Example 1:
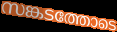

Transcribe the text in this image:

സങ്കടത്തോടെ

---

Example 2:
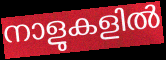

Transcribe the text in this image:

നാളുകളിൽ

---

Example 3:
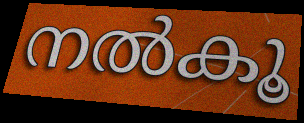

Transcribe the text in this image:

നൽകൂ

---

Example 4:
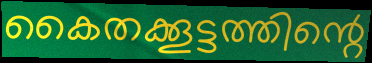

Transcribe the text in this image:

കൈതക്കൂട്ടത്തിന്റെ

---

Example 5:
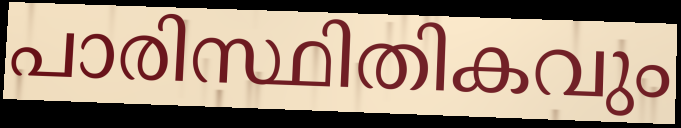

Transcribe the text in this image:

പാരിസ്ഥിതികവും